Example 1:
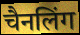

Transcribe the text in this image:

चैनलिंग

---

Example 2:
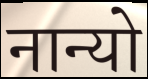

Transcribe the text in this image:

नान्यो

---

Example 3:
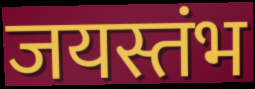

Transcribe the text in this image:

जयस्तंभ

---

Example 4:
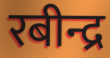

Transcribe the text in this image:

रबीन्द्र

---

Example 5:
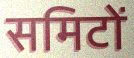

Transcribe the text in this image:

समिटों